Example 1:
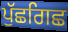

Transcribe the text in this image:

ਪੁੱਛਗਿਛ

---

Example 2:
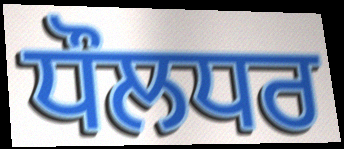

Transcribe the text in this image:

ਧੌਲਧਰ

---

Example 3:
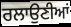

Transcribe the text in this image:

ਰਲਾਉਣੀਆਂ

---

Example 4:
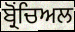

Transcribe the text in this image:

ਬ੍ਰੋਂਚਿਅਲ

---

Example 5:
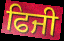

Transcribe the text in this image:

ਫਿਜੀ